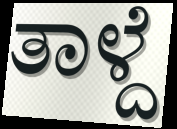
ತಾಳ್ದೆ